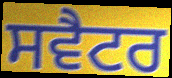
ਸਵੈਟਰ